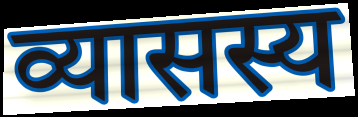
व्यासस्य